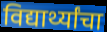
विद्यार्थ्यांचा